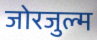
जोरजुल्म